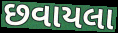
છવાયલા